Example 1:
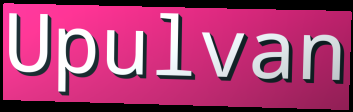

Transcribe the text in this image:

Upulvan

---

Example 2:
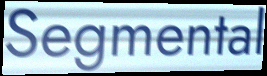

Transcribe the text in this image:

Segmental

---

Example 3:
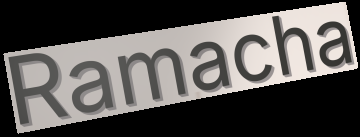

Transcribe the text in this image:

Ramacha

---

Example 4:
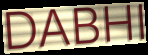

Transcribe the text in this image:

DABHI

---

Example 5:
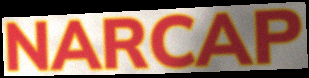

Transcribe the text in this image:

NARCAP